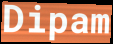
Dipam